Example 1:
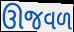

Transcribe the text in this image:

ઊજવળ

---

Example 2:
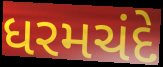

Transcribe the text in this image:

ધરમચંદે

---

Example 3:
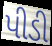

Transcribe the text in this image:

પીડી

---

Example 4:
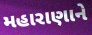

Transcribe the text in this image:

મહારાણાને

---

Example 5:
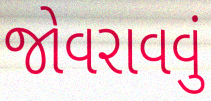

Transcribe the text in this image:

જોવરાવવું